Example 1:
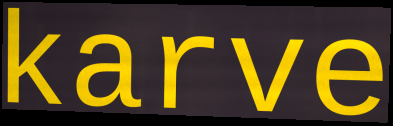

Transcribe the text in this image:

karve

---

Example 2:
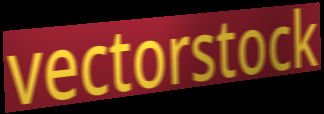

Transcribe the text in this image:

vectorstock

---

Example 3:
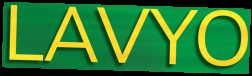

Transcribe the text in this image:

LAVYO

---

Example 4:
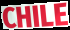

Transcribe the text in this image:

CHILE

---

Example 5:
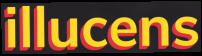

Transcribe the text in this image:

illucens